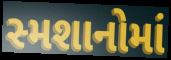
સ્મશાનોમાં